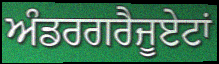
ਅੰਡਰਗਰੈਜੂਏਟਾਂ